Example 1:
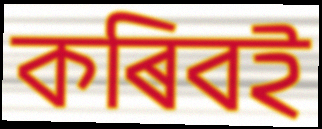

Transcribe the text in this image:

কৰিবই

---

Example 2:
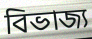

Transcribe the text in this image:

বিভাজ্য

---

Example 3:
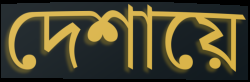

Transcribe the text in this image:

দেশায়ে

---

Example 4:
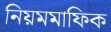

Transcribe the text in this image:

নিয়মমাফিক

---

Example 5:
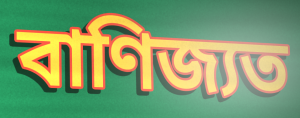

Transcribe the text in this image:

বাণিজ্যত